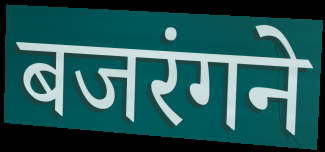
बजरंगने